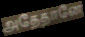
அதேதானே